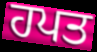
ਹਪਤ